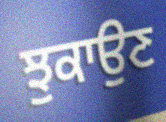
ਝੁਕਾਉਣ